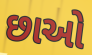
છાઓ